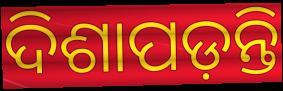
ଦିଶାପଡ଼ନ୍ତି